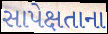
સાપેક્ષતાના